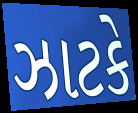
ઝાટકે